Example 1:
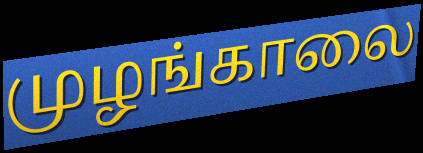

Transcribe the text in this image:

முழங்காலை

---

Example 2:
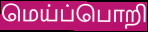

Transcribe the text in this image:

மெய்ப்பொறி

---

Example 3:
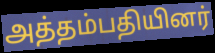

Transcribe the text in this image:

அத்தம்பதியினர்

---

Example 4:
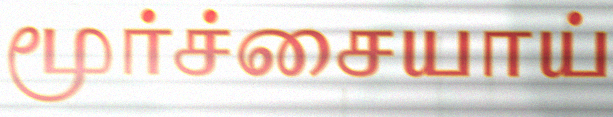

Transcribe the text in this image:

மூர்ச்சையாய்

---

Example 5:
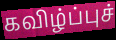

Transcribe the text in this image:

கவிழ்ப்புச்